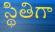
స్థితిగా